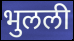
भुलली